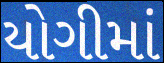
યોગીમાં